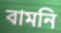
বামনি